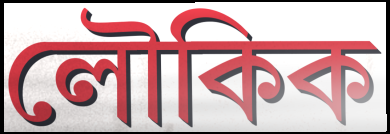
লৌকিক